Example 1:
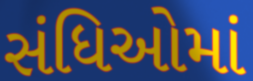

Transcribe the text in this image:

સંધિઓમાં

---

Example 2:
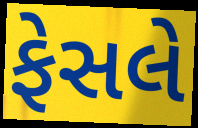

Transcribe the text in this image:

ફેસલે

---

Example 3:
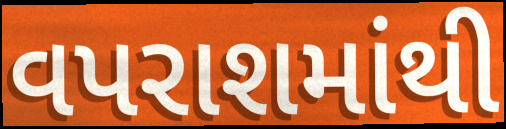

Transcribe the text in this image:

વપરાશમાંથી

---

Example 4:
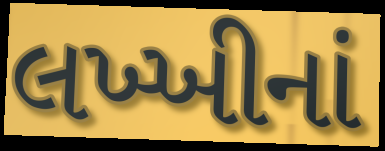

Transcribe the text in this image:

લખ્ખીનાં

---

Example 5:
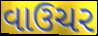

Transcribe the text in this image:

વાઉચર